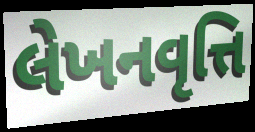
લેખનવૃત્તિ